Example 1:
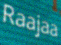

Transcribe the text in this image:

Raajaa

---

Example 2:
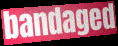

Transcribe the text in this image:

bandaged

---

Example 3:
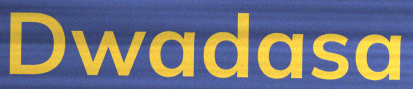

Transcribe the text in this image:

Dwadasa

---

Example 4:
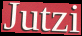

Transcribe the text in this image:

Jutzi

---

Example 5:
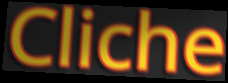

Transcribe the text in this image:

Cliche